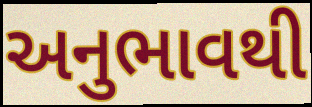
અનુભાવથી